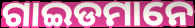
ଗାଇଡମାନେ